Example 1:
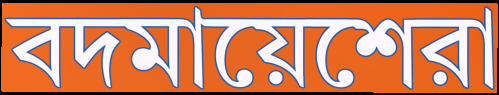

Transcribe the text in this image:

বদমায়েশেরা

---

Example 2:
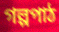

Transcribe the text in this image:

গল্পপাঠ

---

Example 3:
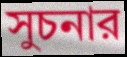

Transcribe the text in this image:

সুচনার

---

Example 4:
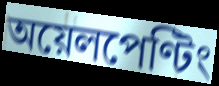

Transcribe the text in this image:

অয়েলপেণ্টিং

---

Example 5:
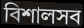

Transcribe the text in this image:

বিশালসব